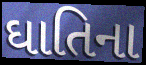
ઘાતિના